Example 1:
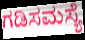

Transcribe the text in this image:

ಗಡಿಸಮಸ್ಯೆ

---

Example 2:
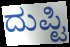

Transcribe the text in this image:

ದುಪ್ಟಿ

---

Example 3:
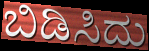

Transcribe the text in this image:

ಬಿಡಿಸಿದು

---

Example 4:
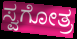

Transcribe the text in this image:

ಸ್ವಗೋತ್ರ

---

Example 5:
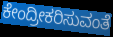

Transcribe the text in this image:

ಕೇಂದ್ರೀಕರಿಸುವಂತೆ